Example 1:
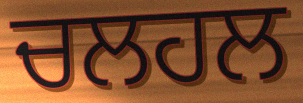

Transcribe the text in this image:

ਚਲਹਲ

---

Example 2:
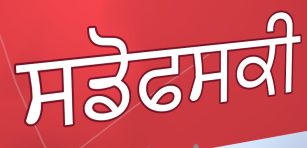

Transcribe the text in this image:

ਸਡੋਫਸਕੀ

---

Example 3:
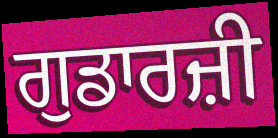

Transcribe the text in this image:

ਗੁਡਾਰਜ਼ੀ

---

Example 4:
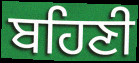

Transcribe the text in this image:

ਬਹਿਣੀ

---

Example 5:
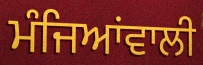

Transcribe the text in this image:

ਮੰਜਿਆਂਵਾਲੀ